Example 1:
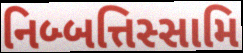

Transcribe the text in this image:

નિબ્બત્તિસ્સામિ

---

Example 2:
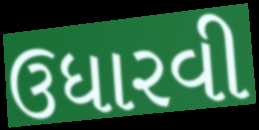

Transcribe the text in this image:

ઉધારવી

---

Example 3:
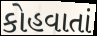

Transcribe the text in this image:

કોહવાતાં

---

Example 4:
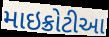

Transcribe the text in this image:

માઇક્રોટીઆ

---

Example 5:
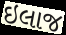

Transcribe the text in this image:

ઇલાજ